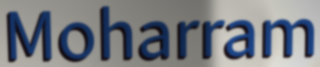
Moharram